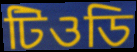
টিওডি